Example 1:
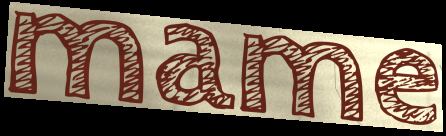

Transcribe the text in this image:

mame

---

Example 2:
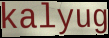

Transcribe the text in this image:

kalyug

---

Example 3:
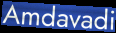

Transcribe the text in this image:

Amdavadi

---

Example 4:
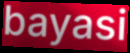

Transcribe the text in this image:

bayasi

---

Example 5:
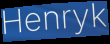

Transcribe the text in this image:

Henryk